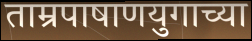
ताम्रपाषाणयुगाच्या